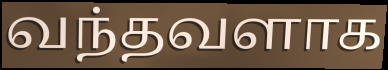
வந்தவளாக